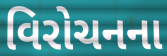
વિરોચનના